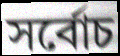
সৰ্বোচ